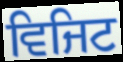
ਵਿਜਿਟ